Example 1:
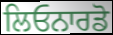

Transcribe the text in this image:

ਲਿਓਨਾਰਡੋ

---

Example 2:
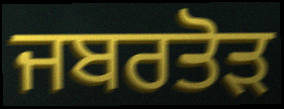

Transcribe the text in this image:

ਜਬਰਤੋੜ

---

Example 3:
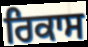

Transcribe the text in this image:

ਰਿਕਾਸ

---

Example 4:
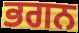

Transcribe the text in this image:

ਭਗਨ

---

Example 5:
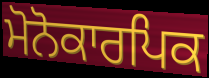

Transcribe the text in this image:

ਮੋਨੋਕਾਰਪਿਕ